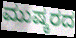
ಮುಷ್ಕರದ